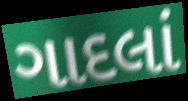
ગાદલાં